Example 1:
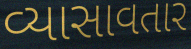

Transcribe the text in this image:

વ્યાસાવતાર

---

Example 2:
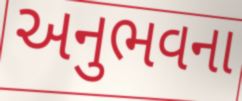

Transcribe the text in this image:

અનુભવના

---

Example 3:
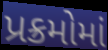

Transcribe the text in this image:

પ્રક્રમોમાં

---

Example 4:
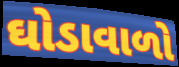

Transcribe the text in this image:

ઘોડાવાળો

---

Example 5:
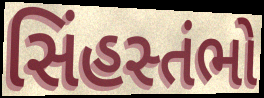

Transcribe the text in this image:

સિંહસ્તંભો